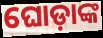
ଘୋଡ଼ାଙ୍କ